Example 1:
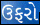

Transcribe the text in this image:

ઉફરો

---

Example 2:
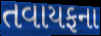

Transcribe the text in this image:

તવાયફના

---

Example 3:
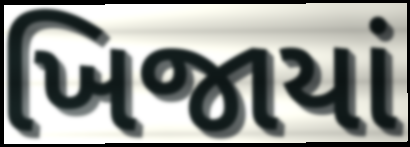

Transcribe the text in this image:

ખિજાયાં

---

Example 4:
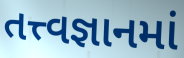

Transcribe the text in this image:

તત્ત્વજ્ઞાનમાં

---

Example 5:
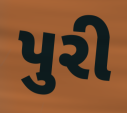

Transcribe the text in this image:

પુરી